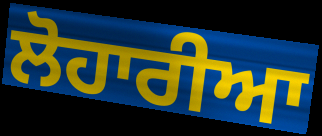
ਲੋਹਾਰੀਆ